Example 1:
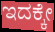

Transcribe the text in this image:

ಇದಕ್ಕೇ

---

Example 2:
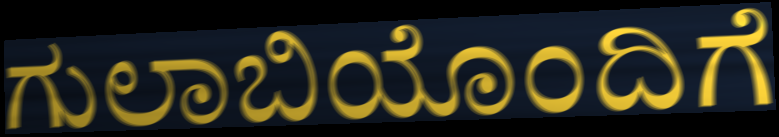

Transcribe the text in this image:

ಗುಲಾಬಿಯೊಂದಿಗೆ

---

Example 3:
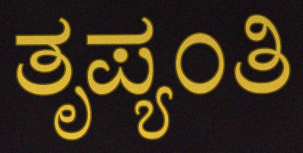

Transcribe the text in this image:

ತೃಪ್ಯಂತಿ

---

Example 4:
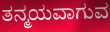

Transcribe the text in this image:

ತನ್ಮಯವಾಗುವ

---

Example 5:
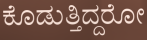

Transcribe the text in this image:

ಕೊಡುತ್ತಿದ್ದರೋ